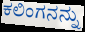
ಕಲಿಂಗನನ್ನು